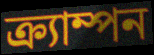
ক্র্যাম্পন